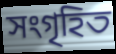
সংগৃহিত